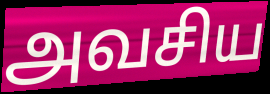
அவசிய